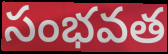
సంభవత